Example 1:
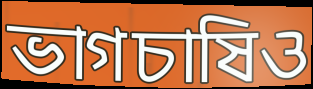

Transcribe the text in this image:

ভাগচাষিও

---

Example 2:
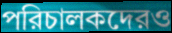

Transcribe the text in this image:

পরিচালকদেরও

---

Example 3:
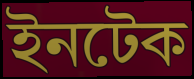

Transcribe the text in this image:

ইনটেক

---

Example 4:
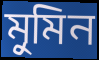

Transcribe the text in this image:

মুমিন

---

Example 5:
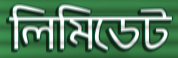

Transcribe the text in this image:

লিমিডেট